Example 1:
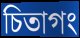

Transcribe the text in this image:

চিতাগং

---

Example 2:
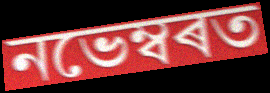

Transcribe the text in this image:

নভেম্বৰত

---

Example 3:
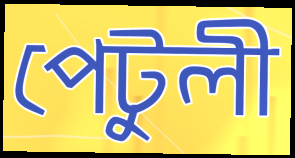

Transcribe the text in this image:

পেটুলী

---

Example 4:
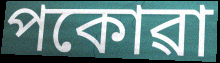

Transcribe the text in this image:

পকোৱা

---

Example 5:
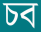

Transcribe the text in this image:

চব